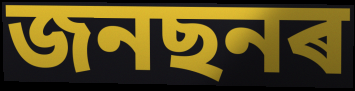
জনছনৰ